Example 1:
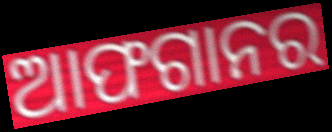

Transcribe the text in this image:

ଆଫଗାନର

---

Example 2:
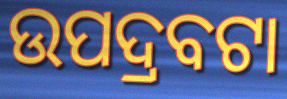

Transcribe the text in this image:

ଉପଦ୍ରବଟା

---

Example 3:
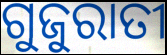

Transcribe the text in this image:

ଗୁଜୁରାତୀ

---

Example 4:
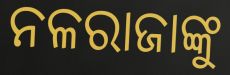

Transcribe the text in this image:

ନଳରାଜାଙ୍କୁ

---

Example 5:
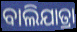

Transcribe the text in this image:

ବାଲିଯାତ୍ରା